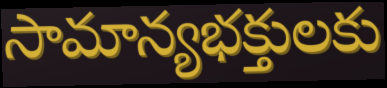
సామాన్యభక్తులకు